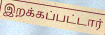
இறக்கப்பட்டார்